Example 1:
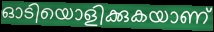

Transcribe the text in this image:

ഓടിയൊളിക്കുകയാണ്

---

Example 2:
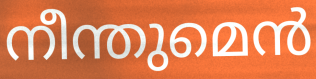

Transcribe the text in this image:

നീന്തുമെൻ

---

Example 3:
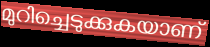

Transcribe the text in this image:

മുറിച്ചെടുക്കുകയാണ്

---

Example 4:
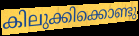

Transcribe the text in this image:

കിലുക്കിക്കൊണ്ടു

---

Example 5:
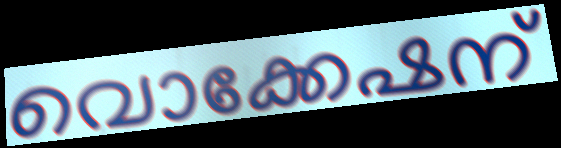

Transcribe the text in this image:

വൊക്കേഷന്